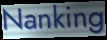
Nanking